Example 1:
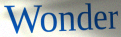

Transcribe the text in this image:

Wonder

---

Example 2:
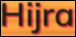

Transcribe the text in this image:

Hijra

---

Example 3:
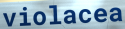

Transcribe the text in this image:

violacea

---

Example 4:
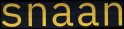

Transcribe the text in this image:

snaan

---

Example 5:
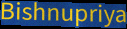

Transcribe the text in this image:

Bishnupriya